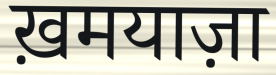
ख़मयाज़ा